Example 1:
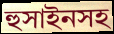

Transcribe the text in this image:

হুসাইনসহ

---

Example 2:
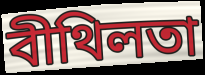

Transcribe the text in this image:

বীথিলতা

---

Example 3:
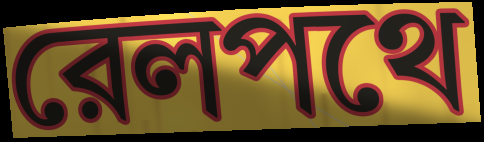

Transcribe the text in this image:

রেলপথে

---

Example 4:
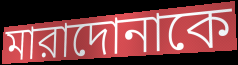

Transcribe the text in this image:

মারাদোনাকে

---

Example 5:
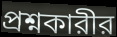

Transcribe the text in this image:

প্রশ্নকারীর